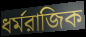
ধর্মরাজিক